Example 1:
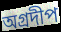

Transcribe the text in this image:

অগ্রদীপ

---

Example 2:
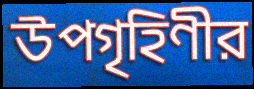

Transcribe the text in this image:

উপগৃহিণীর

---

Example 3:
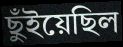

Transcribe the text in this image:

ছুঁইয়েছিল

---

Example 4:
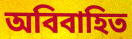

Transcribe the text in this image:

অবিবাহিত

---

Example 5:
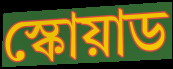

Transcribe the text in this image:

স্কোয়াড